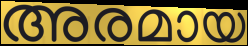
അരമായ